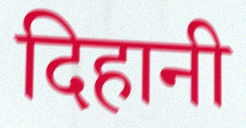
दिहानी